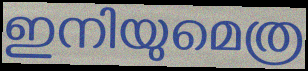
ഇനിയുമെത്ര